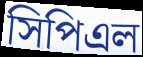
সিপিএল